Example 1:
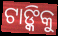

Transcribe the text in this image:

ଟାଙ୍କିକୁ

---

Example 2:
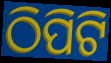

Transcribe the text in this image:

ଠିପିଟି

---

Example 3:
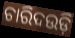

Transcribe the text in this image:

ଚାରିଦଉଡ଼ି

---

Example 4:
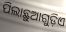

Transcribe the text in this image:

ପିଲାଛୁଆଗୁଡ଼ିଏ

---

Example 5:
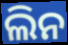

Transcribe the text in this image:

ଲିନ